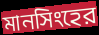
মানসিংহের